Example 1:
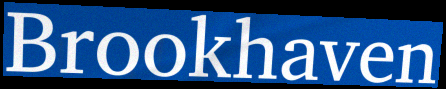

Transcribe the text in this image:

Brookhaven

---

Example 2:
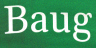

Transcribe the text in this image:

Baug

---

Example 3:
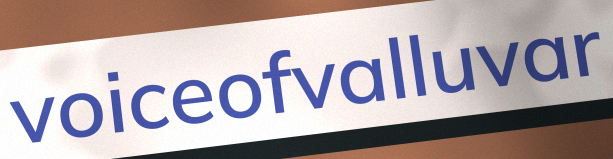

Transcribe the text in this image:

voiceofvalluvar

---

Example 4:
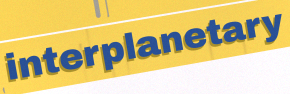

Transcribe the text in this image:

interplanetary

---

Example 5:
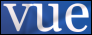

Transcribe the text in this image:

vue